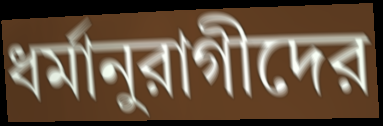
ধর্মানুরাগীদের